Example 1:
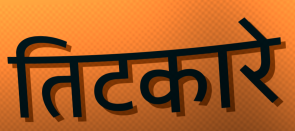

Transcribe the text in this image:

तिटकारे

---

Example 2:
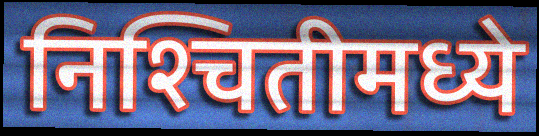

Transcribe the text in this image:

निश्चितीमध्ये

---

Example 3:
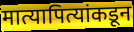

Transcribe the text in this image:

मात्यापित्यांकडून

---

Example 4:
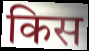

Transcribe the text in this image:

किस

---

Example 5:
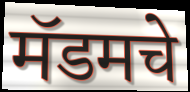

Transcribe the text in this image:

मॅडमचे